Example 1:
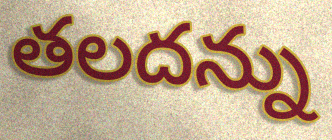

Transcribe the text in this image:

తలదన్ను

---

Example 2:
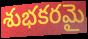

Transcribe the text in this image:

శుభకరమై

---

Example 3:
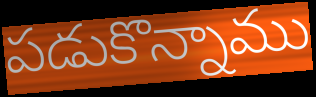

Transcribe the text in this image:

పడుకొన్నాము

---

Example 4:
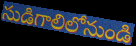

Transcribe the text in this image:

సుడిగాలిలోనుండి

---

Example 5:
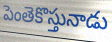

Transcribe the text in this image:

పెంతెకొస్తునాడు